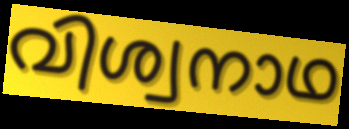
വിശ്വനാഥ